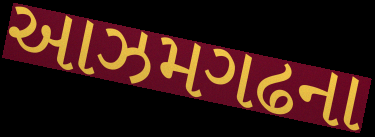
આઝમગઢના